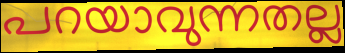
പറയാവുന്നതല്ല